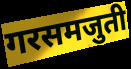
गरसमजुती